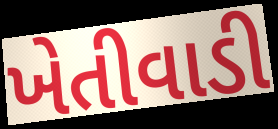
ખેતીવાડી